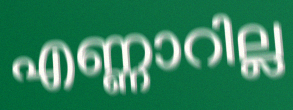
എണ്ണാറില്ല